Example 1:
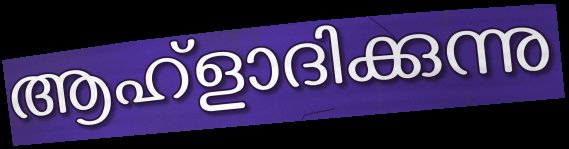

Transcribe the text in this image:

ആഹ്ളാദിക്കുന്നു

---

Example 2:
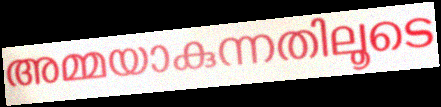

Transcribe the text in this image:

അമ്മയാകുന്നതിലൂടെ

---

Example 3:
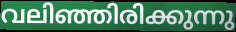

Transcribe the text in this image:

വലിഞ്ഞിരിക്കുന്നു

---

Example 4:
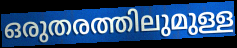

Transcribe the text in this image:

ഒരുതരത്തിലുമുള്ള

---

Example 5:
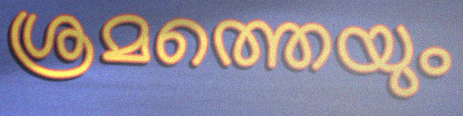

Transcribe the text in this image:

ശ്രമത്തെയും